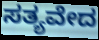
ಸತ್ಯವೇದ